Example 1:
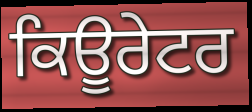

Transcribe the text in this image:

ਕਿਊਰੇਟਰ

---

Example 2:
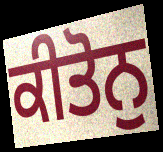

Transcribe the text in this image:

ਕੀਤੋਨੁ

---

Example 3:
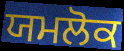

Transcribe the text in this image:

ਯਮਲੋਕ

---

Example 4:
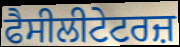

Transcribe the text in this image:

ਫੈਸੀਲੀਟੇਟਰਜ਼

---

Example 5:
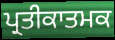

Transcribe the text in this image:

ਪ੍ਰਤੀਕਾਤਮਕ